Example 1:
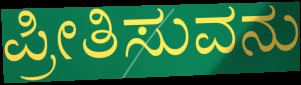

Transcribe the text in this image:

ಪ್ರೀತಿಸುವನು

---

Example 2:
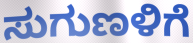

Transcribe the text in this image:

ಸುಗುಣಳಿಗೆ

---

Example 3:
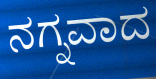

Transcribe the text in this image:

ನಗ್ನವಾದ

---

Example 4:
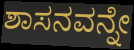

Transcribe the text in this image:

ಶಾಸನವನ್ನೇ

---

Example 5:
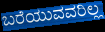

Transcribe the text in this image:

ಬರೆಯುವವರಿಲ್ಲ